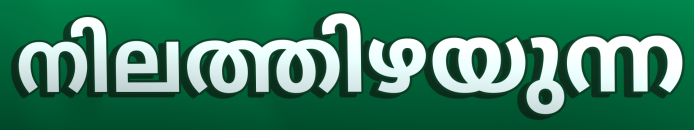
നിലത്തിഴയുന്ന